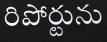
రిపోర్టును